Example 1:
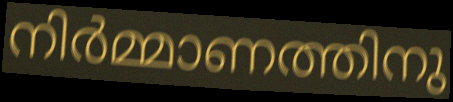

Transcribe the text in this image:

നിർമ്മാണത്തിനു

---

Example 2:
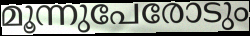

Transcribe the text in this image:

മൂന്നുപേരോടും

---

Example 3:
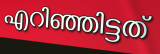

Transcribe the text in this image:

എറിഞ്ഞിട്ടത്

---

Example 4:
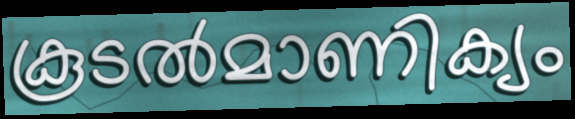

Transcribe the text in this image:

കൂടൽമാണിക്യം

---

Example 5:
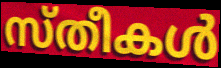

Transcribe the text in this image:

സ്തീകൾ